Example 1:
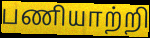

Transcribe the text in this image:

பணியாற்றி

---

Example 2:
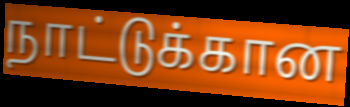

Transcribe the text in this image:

நாட்டுக்கான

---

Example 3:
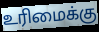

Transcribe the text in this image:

உரிமைக்கு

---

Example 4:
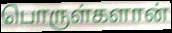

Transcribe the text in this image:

பொருள்களான்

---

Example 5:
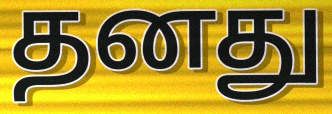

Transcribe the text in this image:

தனது